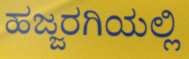
ಹಜ್ಜರಗಿಯಲ್ಲಿ